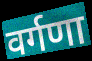
वर्गणा